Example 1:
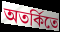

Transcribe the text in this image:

অতর্কিতে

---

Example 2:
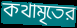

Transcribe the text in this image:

কথামৃতের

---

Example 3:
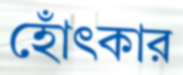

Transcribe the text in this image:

হোঁৎকার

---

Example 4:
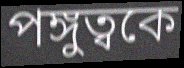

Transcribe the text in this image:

পঙ্গুত্বকে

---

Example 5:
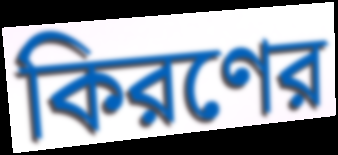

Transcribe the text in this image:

কিরণের